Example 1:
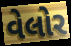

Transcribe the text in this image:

વેલોર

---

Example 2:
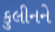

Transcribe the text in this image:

કુલીનને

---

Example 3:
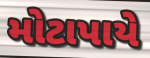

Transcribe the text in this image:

મોટાપાયે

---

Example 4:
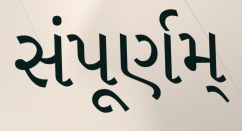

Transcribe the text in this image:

સંપૂર્ણમ્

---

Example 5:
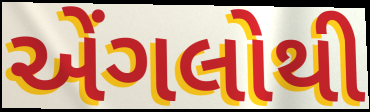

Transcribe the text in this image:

એંગલોથી